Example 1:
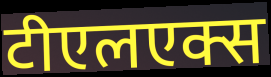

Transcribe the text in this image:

टीएलएक्स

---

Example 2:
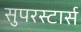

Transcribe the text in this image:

सुपरस्‍टार्स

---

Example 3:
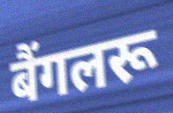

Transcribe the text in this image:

बैंगलरू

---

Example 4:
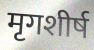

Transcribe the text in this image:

मृगशीर्ष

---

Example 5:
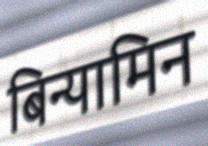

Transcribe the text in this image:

बिन्यामिन